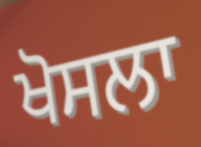
ਖੋਸਲਾ